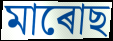
মাৰোছ